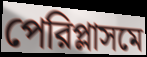
পেরিপ্লাসমে